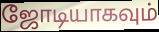
ஜோடியாகவும்